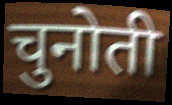
चुनोती